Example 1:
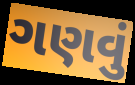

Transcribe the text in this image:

ગણવું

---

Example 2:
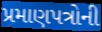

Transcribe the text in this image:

પ્રમાણપત્રોની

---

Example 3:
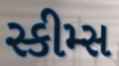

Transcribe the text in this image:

સ્કીમ્સ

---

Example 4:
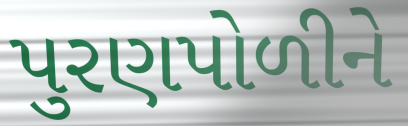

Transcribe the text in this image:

પુરણપોળીને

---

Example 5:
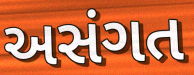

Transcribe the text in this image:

અસંગત